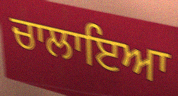
ਚਾਲਾਇਆ